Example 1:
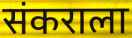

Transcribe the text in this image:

संकराला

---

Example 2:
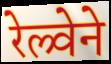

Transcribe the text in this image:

रेल्वेने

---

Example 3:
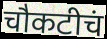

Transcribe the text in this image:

चौकटीचं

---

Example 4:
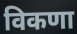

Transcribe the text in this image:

विकणा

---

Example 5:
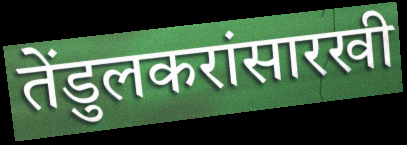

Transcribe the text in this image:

तेंडुलकरांसारखी